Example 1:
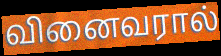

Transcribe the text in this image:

வினைவரால்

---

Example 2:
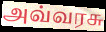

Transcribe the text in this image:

அவ்வரசு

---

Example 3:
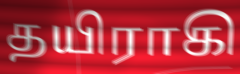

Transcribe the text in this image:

தயிராகி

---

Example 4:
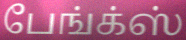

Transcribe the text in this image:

பேங்க்ஸ்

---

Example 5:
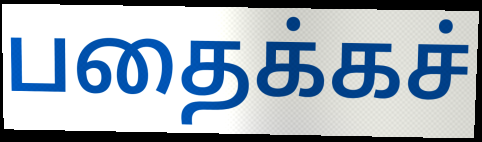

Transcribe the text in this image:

பதைக்கச்